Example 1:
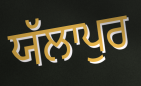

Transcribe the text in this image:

ਯੱਲਾਪੁਰ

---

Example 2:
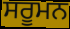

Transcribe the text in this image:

ਸਰੂਮਨ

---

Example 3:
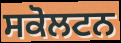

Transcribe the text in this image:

ਸਕੋਲਟਨ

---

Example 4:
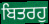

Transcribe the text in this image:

ਬਿਤਰਹੁ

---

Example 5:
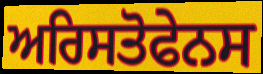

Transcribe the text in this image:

ਅਰਿਸਤੋਫੇਨਸ